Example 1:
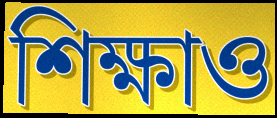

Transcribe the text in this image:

শিক্ষাও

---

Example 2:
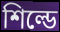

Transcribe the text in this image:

শিল্ডে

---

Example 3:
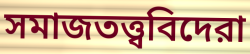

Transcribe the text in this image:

সমাজতত্ত্ববিদেরা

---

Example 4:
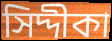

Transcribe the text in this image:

সিদ্দীকা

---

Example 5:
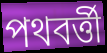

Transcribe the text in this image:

পথবর্ত্তী